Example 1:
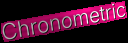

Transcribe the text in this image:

Chronometric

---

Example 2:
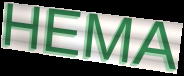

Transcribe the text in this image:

HEMA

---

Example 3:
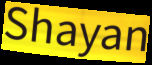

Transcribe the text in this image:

Shayan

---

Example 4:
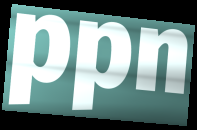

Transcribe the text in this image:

ppn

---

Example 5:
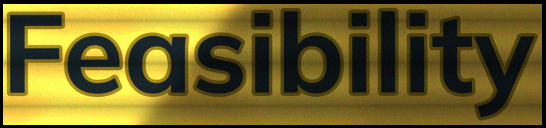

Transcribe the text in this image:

Feasibility